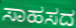
ಸಾಹಸದ